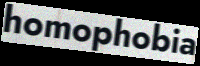
homophobia